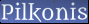
Pilkonis